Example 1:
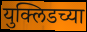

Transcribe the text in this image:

युक्लिडच्या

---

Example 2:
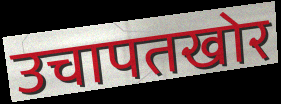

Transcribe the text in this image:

उचापतखोर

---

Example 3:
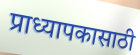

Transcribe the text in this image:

प्राध्यापकासाठी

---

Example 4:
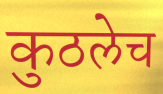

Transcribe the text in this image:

कुठलेच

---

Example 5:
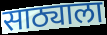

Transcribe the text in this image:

साठ्याला